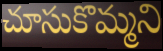
చూసుకొమ్మని